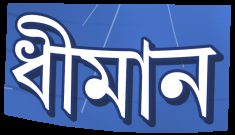
ধীমান